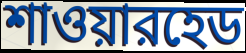
শাওয়ারহেড